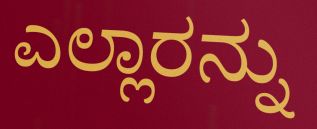
ಎಲ್ಲಾರನ್ನು